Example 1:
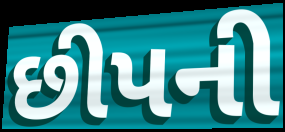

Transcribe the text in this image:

છીપની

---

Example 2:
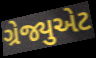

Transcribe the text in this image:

ગ્રેજ્યુએટ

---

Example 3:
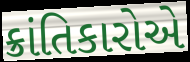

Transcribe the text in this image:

ક્રાંતિકારોએ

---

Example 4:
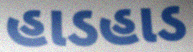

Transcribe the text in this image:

હાડહાડ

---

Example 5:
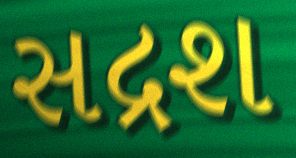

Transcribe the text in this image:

સદ્રશ